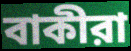
বাকীরা